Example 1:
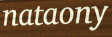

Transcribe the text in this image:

nataony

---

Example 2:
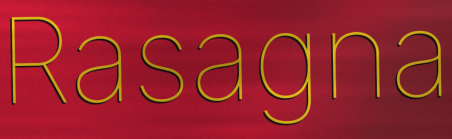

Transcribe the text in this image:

Rasagna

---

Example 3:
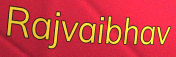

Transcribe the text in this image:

Rajvaibhav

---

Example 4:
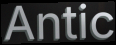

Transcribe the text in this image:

Antic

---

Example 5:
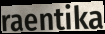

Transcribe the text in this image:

raentika